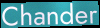
Chander